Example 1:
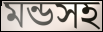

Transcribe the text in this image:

মন্ডসহ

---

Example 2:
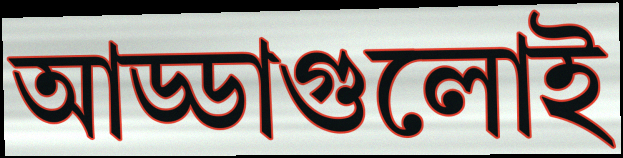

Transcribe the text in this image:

আড্ডাগুলোই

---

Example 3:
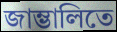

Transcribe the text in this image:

জাম্ভালিতে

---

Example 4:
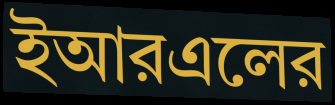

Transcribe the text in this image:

ইআরএলের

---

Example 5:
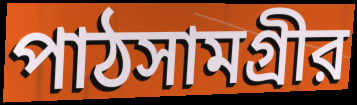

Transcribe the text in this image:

পাঠসামগ্রীর